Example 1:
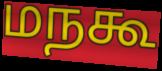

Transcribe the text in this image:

மநகூ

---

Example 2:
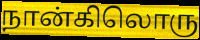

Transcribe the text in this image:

நான்கிலொரு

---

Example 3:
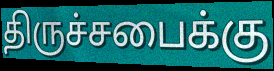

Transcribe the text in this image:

திருச்சபைக்கு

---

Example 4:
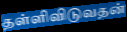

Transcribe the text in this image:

தள்ளிவிடுவதன்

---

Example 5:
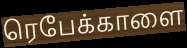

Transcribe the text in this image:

ரெபேக்காளை